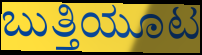
ಬುತ್ತಿಯೂಟ